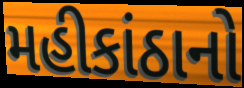
મહીકાંઠાનો